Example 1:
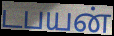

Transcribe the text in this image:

டபயன்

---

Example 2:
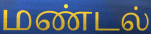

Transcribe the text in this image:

மண்டல்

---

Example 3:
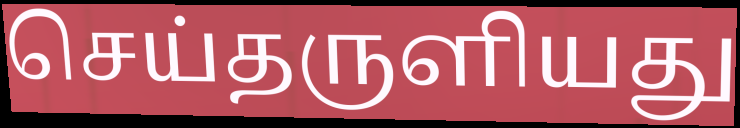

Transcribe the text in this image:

செய்தருளியது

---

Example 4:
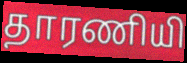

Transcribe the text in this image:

தாரணியி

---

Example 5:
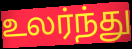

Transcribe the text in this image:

உலர்ந்து